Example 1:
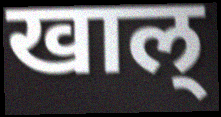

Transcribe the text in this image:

खाल्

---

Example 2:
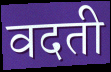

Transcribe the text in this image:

वदती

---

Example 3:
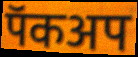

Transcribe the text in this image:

पॅकअप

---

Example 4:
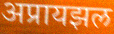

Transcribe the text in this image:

अप्रायझल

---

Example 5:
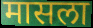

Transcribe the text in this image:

मासला